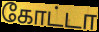
கோட்டா